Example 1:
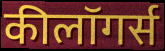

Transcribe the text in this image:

कीलॉगर्स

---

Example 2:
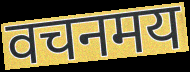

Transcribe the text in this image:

वचनमय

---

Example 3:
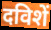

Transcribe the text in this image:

दविशें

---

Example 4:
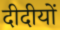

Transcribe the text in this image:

दीदीयों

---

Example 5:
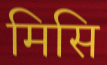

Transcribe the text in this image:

मिसि